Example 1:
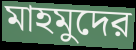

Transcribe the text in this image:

মাহমুদের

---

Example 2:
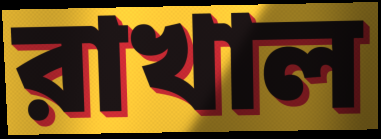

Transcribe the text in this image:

রাখাল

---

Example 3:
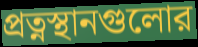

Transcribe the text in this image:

প্রত্নস্থানগুলোর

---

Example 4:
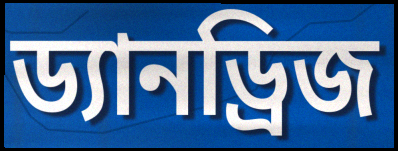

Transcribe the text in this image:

ড্যানড্রিজ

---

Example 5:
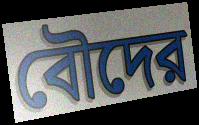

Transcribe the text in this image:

বৌদের